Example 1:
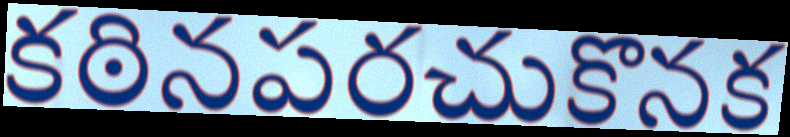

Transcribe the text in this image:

కఠినపరచుకొనక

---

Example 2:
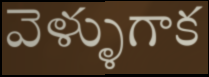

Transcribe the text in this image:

వెళ్ళుగాక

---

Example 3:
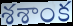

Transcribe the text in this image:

శశాంక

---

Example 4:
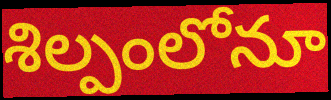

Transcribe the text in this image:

శిల్పంలోనూ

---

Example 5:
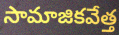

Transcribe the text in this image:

సామాజికవేత్త